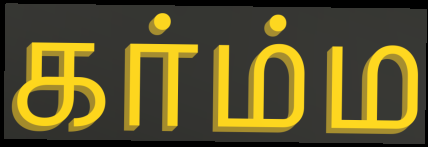
கர்ம்ம